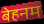
बेहनम